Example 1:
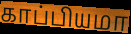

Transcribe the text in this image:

காப்பியமா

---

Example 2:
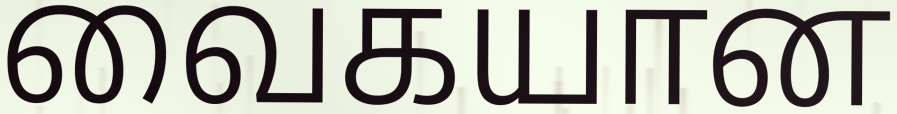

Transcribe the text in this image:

வைகயான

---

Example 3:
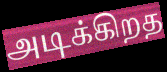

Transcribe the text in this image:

அடிக்கிறத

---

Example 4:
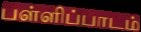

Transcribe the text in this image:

பள்ளிப்பாடம்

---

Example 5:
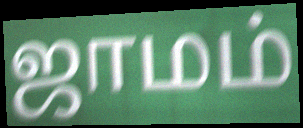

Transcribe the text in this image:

ஜாமம்